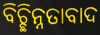
ବିଚ୍ଛିନ୍ନତାବାଦ